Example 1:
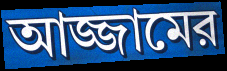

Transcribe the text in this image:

আজ্জামের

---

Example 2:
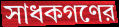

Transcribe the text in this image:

সাধকগণের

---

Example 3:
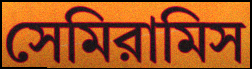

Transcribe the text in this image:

সেমিরামিস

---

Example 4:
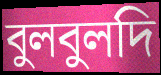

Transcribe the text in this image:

বুলবুলদি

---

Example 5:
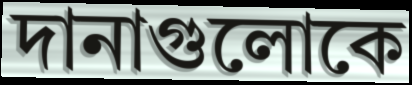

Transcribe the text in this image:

দানাগুলোকে